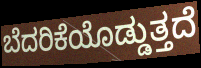
ಬೆದರಿಕೆಯೊಡ್ಡುತ್ತದೆ